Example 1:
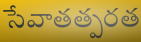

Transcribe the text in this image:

సేవాతత్పరత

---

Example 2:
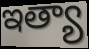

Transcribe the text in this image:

ఇత్యా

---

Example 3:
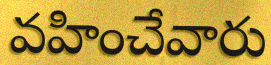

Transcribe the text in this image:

వహించేవారు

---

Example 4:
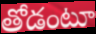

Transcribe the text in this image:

తోడంటూ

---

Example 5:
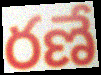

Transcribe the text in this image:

రణే